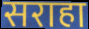
सराहा